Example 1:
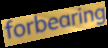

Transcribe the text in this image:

forbearing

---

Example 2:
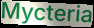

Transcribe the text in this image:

Mycteria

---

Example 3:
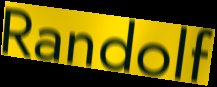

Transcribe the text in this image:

Randolf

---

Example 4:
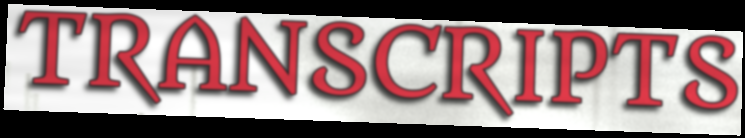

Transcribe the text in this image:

TRANSCRIPTS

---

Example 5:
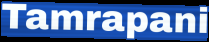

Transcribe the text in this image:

Tamrapani